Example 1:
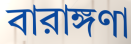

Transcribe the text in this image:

বারাঙ্গণা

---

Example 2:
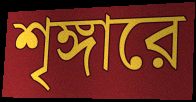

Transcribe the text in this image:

শৃঙ্গারে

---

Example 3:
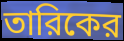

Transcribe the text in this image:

তারিকের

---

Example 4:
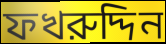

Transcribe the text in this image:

ফখরুদ্দিন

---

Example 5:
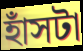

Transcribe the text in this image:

হাঁসটা